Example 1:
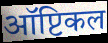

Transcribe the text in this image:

ऑप्टिकल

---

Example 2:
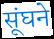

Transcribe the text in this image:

सूंघने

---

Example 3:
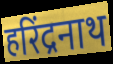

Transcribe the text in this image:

हरिंद्रनाथ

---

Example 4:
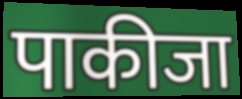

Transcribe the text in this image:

पाकीजा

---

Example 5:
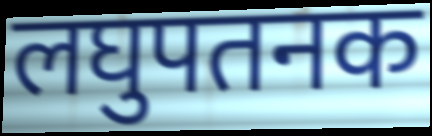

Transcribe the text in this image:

लघुपतनक